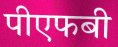
पीएफबी